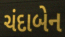
ચંદાબેન